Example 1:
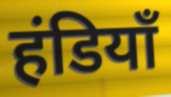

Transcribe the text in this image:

हंडियाँ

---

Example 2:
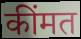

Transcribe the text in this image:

कींमत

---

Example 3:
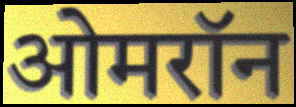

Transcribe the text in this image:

ओमरॉन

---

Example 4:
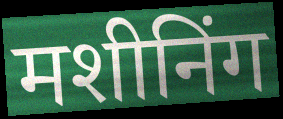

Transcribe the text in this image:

मशीनिंग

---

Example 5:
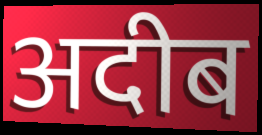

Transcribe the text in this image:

अदीब